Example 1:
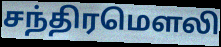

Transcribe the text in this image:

சந்திரமௌலி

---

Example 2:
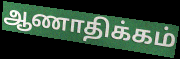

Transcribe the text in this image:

ஆணாதிக்கம்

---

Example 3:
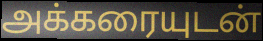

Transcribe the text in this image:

அக்கரையுடன்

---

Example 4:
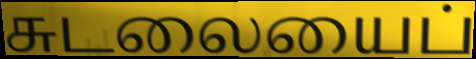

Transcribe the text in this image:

சுடலையைப்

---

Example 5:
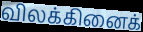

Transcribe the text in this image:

விலக்கினைக்